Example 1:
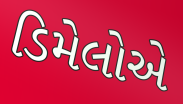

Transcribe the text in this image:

ડિમેલોએ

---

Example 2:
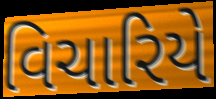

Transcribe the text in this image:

વિચારિયે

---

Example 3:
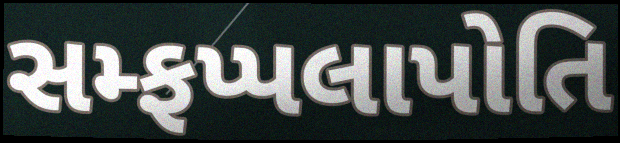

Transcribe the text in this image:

સમ્ફપ્પલાપોતિ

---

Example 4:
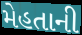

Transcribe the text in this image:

મેહતાની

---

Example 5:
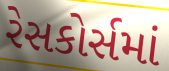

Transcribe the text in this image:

રેસકોર્સમાં